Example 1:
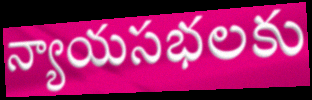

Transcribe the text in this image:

న్యాయసభలకు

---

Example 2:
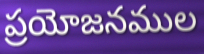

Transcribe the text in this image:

ప్రయోజనముల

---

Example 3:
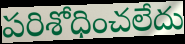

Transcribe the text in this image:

పరిశోధించలేదు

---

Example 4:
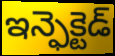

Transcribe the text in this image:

ఇన్ఫెక్టెడ్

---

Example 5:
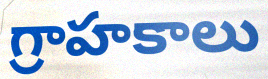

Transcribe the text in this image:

గ్రాహకాలు